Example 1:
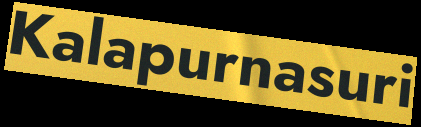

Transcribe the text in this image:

Kalapurnasuri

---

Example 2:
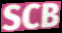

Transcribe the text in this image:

SCB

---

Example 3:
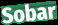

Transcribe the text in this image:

Sobar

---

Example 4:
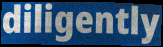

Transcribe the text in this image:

diligently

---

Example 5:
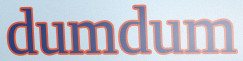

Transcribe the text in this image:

dumdum